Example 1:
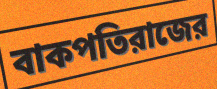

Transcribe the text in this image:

বাকপতিরাজের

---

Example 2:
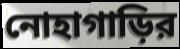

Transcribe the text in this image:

নোহাগাড়ির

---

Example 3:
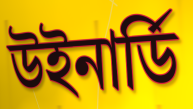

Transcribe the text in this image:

উইনার্ডি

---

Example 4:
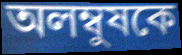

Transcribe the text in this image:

অলম্বুষকে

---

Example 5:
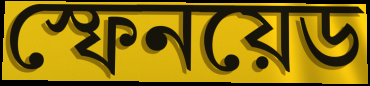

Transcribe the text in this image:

স্ফেনয়েড